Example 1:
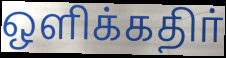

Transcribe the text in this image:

ஒளிக்கதிர்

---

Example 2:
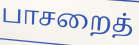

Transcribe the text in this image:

பாசறைத்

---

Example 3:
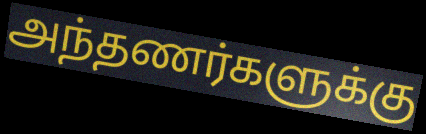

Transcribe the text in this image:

அந்தணர்களுக்கு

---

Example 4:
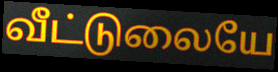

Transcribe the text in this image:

வீட்டுலையே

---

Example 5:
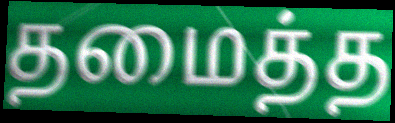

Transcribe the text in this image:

தமைத்த